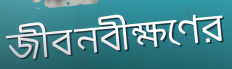
জীবনবীক্ষণের